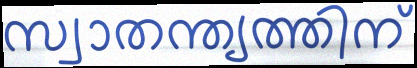
സ്വാതന്ത്യത്തിന്